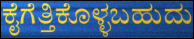
ಕೈಗೆತ್ತಿಕೊಳ್ಳಬಹುದು